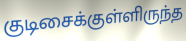
குடிசைக்குள்ளிருந்த